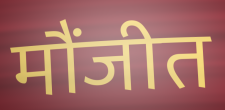
मौंजीत